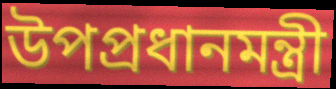
উপপ্রধানমন্ত্রী